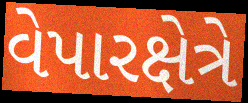
વેપારક્ષેત્રે